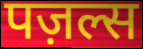
पज़ल्स